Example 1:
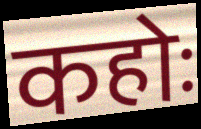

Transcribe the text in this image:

कहोः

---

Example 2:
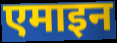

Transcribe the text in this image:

एमाइन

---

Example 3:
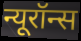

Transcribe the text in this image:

न्यूरॉन्स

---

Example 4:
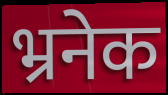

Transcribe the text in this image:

भ्रनेक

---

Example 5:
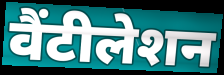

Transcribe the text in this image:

वैंटीलेशन